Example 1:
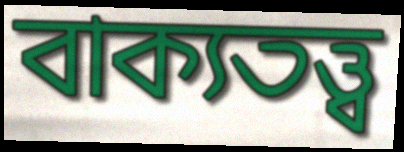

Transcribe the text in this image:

বাক্যতত্ত্ব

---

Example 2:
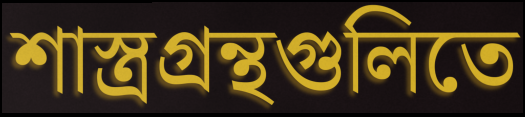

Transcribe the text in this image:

শাস্ত্রগ্রন্থগুলিতে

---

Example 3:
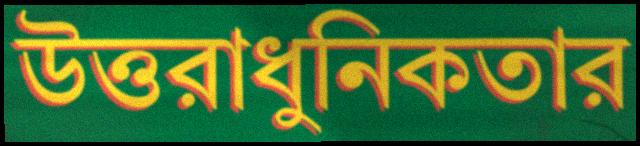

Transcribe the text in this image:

উত্তরাধুনিকতার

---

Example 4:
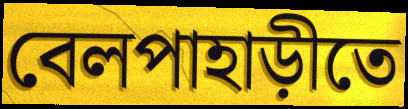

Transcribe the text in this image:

বেলপাহাড়ীতে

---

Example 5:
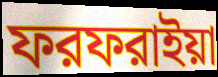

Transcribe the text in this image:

ফরফরাইয়া